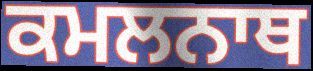
ਕਮਲਨਾਥ